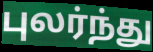
புலர்ந்து